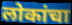
लोकांचा